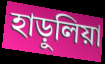
হাড়ুলিয়া